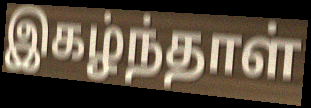
இகழ்ந்தாள்